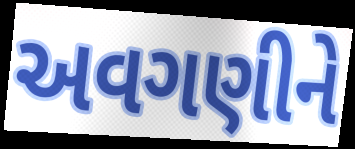
અવગણીને